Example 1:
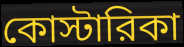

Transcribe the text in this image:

কোস্টারিকা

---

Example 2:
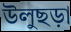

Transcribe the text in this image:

উলুছড়া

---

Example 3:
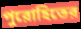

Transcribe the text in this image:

পুরোহিতের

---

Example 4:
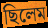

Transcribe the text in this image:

ছিলেম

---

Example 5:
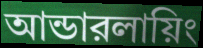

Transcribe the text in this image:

আন্ডারলায়িং